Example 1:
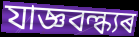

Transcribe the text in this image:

যাজ্ঞবল্ক্যৰ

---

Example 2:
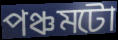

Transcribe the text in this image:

পঞ্চমটো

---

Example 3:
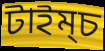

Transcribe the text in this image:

টাইম্‌চ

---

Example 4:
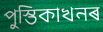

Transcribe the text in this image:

পুস্তিকাখনৰ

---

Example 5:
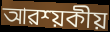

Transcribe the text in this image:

আৱশ্য়কীয়